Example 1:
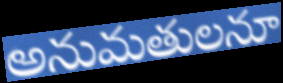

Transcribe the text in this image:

అనుమతులనూ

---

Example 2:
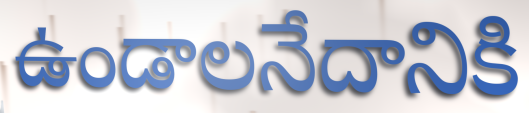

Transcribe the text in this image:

ఉండాలనేదానికి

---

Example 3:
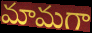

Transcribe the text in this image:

మామగా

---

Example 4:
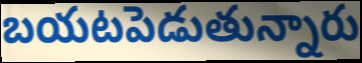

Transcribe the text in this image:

బయటపెడుతున్నారు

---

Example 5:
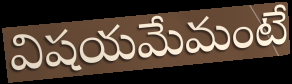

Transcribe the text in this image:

విషయమేమంటే